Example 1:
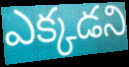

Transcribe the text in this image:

ఎక్కడని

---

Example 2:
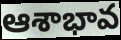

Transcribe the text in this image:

ఆశాభావ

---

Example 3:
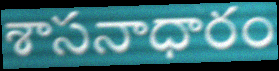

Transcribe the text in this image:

శాసనాధారం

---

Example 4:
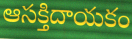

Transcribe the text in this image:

ఆసక్తిదాయకం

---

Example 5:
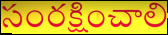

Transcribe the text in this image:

సంరక్షించాలి